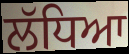
ਲੱਧਿਆ